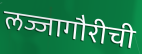
लज्जागौरीची